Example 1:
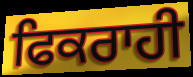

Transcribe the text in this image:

ਫਿਕਰਾਹੀ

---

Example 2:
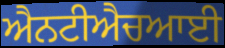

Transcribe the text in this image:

ਐਨਟੀਐਚਆਈ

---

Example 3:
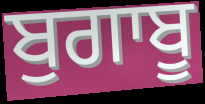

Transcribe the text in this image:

ਬੁਗਾਬੂ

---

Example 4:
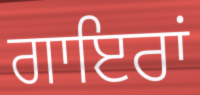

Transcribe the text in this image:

ਗਾਇਰਾਂ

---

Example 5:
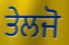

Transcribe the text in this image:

ਤੇਲਜੋ